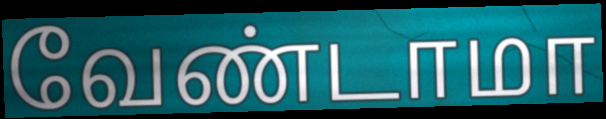
வேண்டாமா